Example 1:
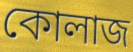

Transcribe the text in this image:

কোলাজ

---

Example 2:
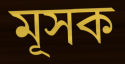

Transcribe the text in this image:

মূসক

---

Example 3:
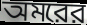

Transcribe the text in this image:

অমরের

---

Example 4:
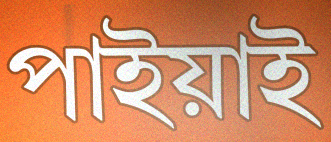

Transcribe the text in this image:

পাইয়াই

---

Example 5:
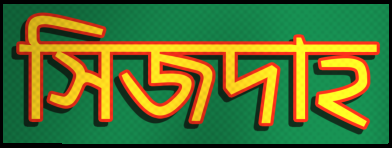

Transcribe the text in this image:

সিজদাহ